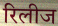
रिलीज